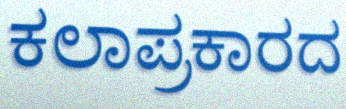
ಕಲಾಪ್ರಕಾರದ